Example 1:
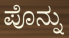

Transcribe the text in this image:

ಪೊನ್ನು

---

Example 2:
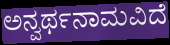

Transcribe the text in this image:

ಅನ್ವರ್ಥನಾಮವಿದೆ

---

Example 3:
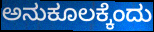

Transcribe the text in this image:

ಅನುಕೂಲಕ್ಕೆಂದು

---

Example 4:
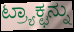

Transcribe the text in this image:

ಟ್ರ್ಯಾಕ್ಟನ್ನು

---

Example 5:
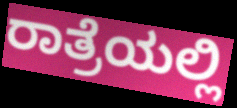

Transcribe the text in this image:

ರಾತ್ರೆಯಲ್ಲಿ